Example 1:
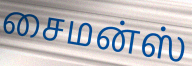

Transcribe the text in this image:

சைமன்ஸ்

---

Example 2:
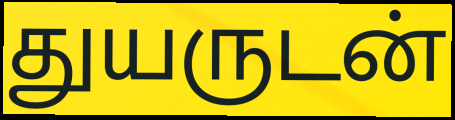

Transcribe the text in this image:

துயருடன்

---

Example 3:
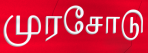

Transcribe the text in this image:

முரசோடு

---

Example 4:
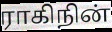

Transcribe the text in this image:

ராகிநின்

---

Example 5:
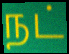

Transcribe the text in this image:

நட்